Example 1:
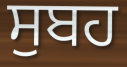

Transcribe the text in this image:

ਸੁਬਹ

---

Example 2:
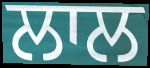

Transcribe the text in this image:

ਲਾਲ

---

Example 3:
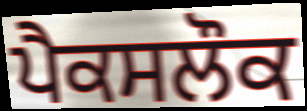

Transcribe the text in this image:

ਪੈਕਸਲੌਕ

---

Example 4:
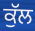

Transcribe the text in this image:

ਕੁੱਲ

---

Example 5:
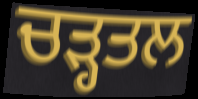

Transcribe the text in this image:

ਚੜ੍ਹਤਲ